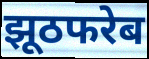
झूठफरेब